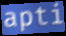
apti